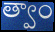
త్వాం